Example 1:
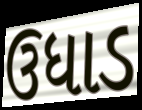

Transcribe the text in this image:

ઉધાડ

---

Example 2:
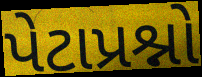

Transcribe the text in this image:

પેટાપ્રશ્નો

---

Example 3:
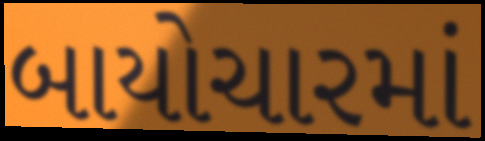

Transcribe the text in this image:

બાયોચારમાં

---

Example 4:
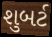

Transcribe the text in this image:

શુબર્ટ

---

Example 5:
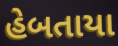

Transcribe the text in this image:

હેબતાયા